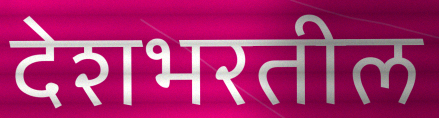
देशभरतील